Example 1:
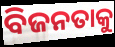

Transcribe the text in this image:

ବିଜନତାକୁ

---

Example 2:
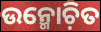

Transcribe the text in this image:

ଉନ୍ମୋଚ଼ିତ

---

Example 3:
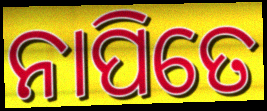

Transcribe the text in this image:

ନାପିତେ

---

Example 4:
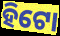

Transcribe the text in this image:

ହିଟୋ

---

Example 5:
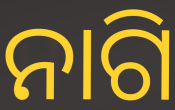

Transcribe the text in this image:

ନାଗି